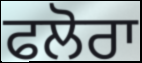
ਫਲੋਰਾ